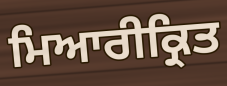
ਮਿਆਰੀਕ੍ਰਿਤ